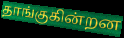
தாங்குகின்றன